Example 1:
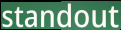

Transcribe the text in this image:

standout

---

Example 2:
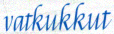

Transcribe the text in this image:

vatkukkut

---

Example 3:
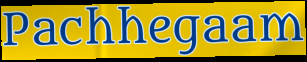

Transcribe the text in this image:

Pachhegaam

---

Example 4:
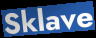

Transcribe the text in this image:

Sklave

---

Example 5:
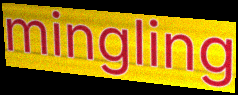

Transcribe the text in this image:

mingling